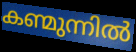
കണ്മുന്നിൽ